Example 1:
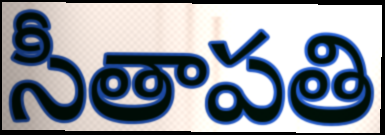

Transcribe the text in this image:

సీతాపతి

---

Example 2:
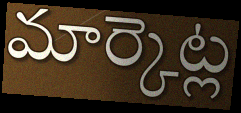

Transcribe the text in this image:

మార్కెట్ల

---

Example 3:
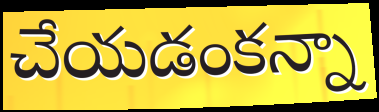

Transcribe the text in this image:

చేయడంకన్నా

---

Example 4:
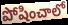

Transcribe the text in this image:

పోషించాలో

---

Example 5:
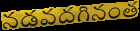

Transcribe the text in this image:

నడవదగినంత